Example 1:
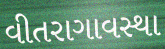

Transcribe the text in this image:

વીતરાગાવસ્થા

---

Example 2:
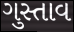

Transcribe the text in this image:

ગુસ્તાવ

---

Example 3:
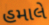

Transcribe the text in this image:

હમાલે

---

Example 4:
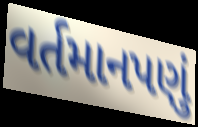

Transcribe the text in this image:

વર્તમાનપણું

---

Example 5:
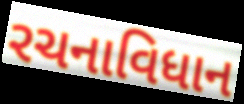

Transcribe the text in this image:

રચનાવિધાન